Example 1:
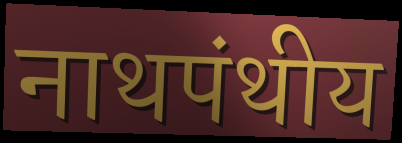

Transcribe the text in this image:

नाथपंथीय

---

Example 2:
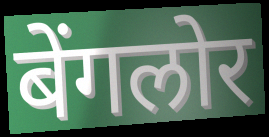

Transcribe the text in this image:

बेंगलोर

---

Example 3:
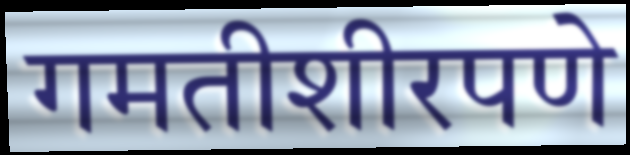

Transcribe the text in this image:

गमतीशीरपणे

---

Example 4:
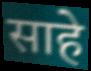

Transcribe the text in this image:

साहे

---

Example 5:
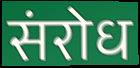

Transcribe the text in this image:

संरोध